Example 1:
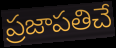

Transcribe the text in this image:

ప్రజాపతిచే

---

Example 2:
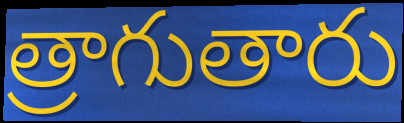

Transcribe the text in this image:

త్రాగుతారు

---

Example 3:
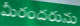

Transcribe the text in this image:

మీరందరును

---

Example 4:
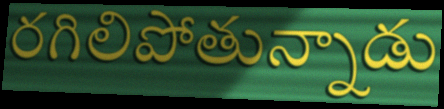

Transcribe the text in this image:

రగిలిపోతున్నాడు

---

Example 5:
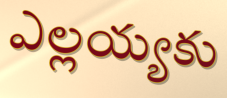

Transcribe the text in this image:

ఎల్లయ్యకు